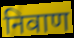
निवाण